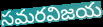
సమరవిజయ